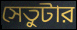
সেতুটার